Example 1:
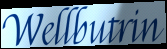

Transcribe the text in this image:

Wellbutrin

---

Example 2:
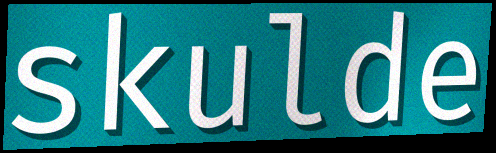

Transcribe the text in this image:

skulde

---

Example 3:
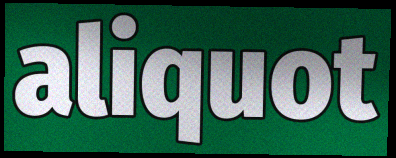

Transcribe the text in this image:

aliquot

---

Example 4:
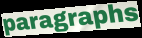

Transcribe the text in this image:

paragraphs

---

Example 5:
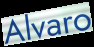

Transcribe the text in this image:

Alvaro